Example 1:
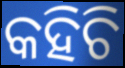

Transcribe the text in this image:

କହିଚି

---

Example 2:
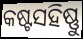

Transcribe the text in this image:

କଷ୍ଟସହିଷ୍ଣୁ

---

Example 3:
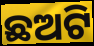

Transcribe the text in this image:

ଛଅଟି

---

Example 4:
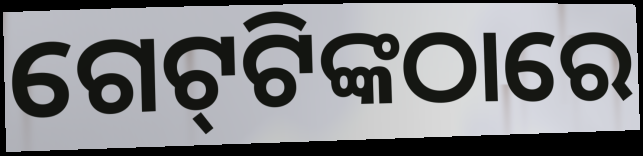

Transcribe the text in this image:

ଗେଟ୍‌ଟିଙ୍କଠାରେ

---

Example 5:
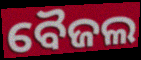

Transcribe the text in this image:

ବୈଜଲ